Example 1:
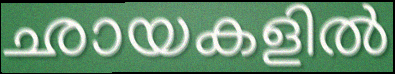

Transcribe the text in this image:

ഛായകളിൽ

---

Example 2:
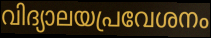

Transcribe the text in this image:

വിദ്യാലയപ്രവേശനം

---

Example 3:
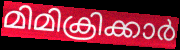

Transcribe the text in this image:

മിമിക്രിക്കാർ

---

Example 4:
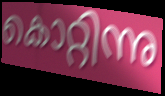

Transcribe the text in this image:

കൊറ്റിന്നു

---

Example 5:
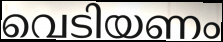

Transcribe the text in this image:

വെടിയണം